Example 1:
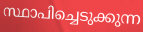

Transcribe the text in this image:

സ്ഥാപിച്ചെടുക്കുന്ന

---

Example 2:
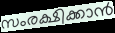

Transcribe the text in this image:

സംരക്ഷിക്കാൻ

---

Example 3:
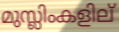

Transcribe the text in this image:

മുസ്ലിംകളില്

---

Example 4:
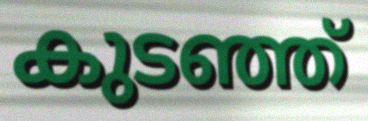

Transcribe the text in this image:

കുടഞ്ഞ്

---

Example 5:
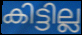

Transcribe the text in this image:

കിട്ടില്ല